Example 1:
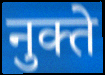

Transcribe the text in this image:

नुक्ते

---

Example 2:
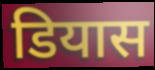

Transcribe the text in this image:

डियास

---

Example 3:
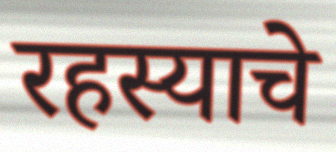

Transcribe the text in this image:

रहस्याचे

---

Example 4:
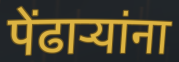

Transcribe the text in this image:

पेंढाऱ्यांना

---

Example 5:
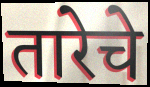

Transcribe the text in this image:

तारेचे